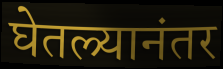
घेतल्यानंतर